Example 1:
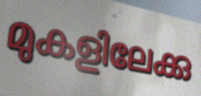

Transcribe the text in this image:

മുകളിലേക്കു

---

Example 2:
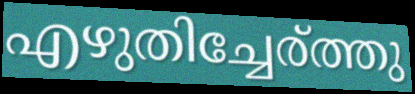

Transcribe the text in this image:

എഴുതിച്ചേര്ത്തു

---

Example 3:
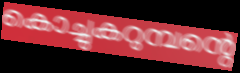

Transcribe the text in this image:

കൊച്ചുകറുമ്പന്റെ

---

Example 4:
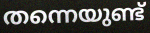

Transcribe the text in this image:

തന്നെയുണ്ട്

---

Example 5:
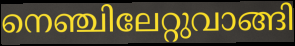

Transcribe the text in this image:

നെഞ്ചിലേറ്റുവാങ്ങി